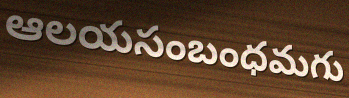
ఆలయసంబంధమగు